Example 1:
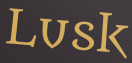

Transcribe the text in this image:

Lusk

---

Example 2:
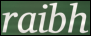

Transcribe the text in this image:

raibh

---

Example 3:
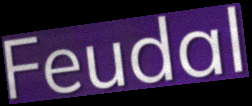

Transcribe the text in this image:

Feudal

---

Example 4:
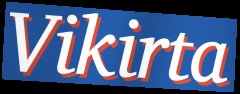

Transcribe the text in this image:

Vikirta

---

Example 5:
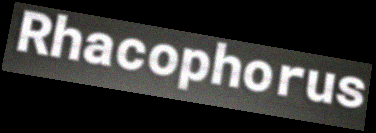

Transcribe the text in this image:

Rhacophorus